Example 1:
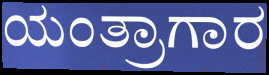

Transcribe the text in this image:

ಯಂತ್ರಾಗಾರ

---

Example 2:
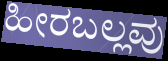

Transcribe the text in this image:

ಹೀರಬಲ್ಲವು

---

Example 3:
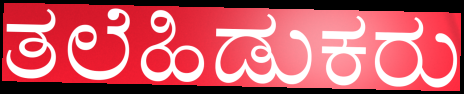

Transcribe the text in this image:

ತಲೆಹಿಡುಕರು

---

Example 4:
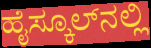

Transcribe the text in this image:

ಹೈಸ್ಕೂಲ್‌ನಲ್ಲಿ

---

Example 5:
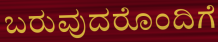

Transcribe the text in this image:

ಬರುವುದರೊಂದಿಗೆ